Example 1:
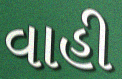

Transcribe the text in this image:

વાહી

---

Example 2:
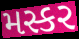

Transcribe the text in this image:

મસ્કર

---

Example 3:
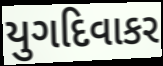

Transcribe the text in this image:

યુગદિવાકર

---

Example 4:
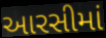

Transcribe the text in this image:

આરસીમાં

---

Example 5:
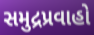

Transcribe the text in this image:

સમુદ્રપ્રવાહો